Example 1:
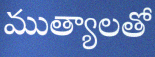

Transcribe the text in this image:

ముత్యాలతో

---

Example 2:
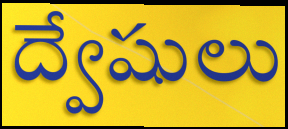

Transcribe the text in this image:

ద్వేషులు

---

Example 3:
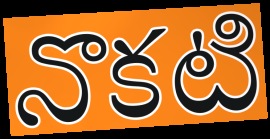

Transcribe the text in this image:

నొకటి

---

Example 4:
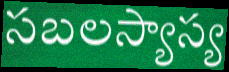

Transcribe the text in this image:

సబలస్యాస్య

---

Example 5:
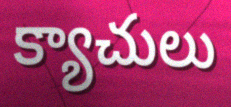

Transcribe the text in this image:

క్యాచులు